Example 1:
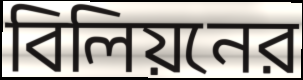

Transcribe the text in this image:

বিলিয়নের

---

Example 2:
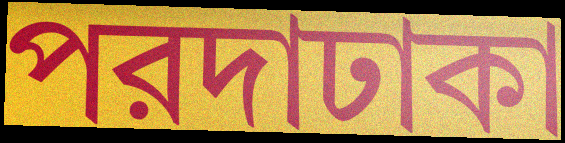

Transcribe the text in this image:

পরদাঢাকা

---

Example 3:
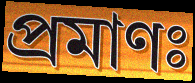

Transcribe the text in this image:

প্রমাণঃ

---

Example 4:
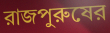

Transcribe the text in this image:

রাজপুরুষের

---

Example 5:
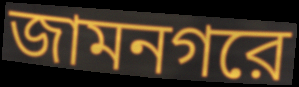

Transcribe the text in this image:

জামনগরে